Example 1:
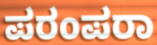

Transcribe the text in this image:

ಪರಂಪರಾ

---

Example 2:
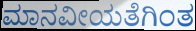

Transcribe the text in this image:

ಮಾನವೀಯತೆಗಿಂತ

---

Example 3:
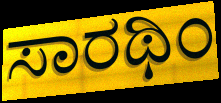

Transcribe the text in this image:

ಸಾರಥಿಂ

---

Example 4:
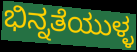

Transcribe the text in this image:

ಭಿನ್ನತೆಯುಳ್ಳ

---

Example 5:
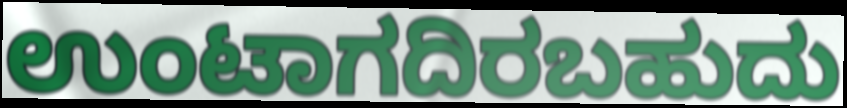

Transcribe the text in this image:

ಉಂಟಾಗದಿರಬಹುದು